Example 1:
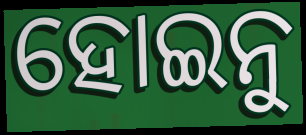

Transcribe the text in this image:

ହୋଇନୁ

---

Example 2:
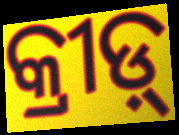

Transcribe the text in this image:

କ୍ରୀଡ଼୍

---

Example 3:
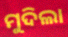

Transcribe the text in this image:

ମୁଦିଲା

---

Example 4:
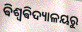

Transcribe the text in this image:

ଵିଶ୍ୱଵିଦ୍ୟାଳୟରୁ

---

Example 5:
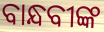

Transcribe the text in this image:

ବାନ୍ଧବୀଙ୍କ